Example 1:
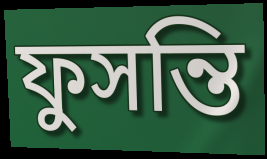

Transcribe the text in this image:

ফুসন্তি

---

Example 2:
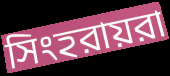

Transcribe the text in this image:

সিংহরায়রা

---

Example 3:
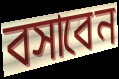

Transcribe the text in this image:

বসাবেন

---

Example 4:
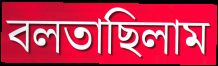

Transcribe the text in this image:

বলতাছিলাম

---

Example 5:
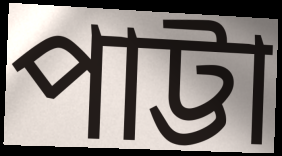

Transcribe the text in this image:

পাট্টা